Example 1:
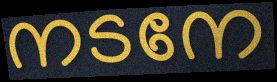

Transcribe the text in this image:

നടനേ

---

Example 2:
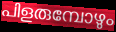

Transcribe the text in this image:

പിളരുമ്പോഴും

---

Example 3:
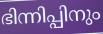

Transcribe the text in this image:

ഭിന്നിപ്പിനും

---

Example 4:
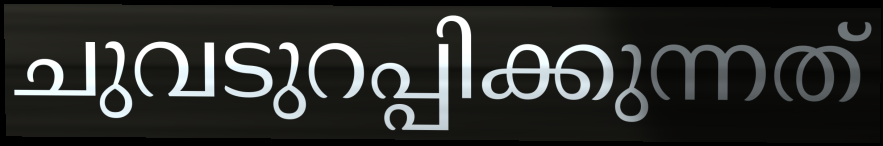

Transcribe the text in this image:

ചുവടുറപ്പിക്കുന്നത്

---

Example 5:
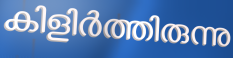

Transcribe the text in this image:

കിളിർത്തിരുന്നു